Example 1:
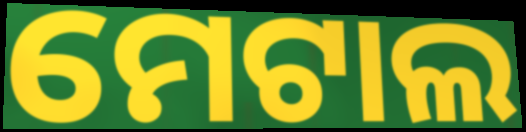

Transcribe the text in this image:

ମେଟାଲ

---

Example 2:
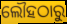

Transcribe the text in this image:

ଲୌହଠାରୁ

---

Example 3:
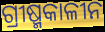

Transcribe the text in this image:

ଗ୍ରୀଷ୍ମକାଳୀନ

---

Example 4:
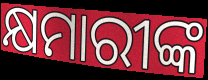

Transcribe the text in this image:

କ୍ଷମାରୀଙ୍କ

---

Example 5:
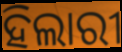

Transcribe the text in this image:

ହିଲାରୀ